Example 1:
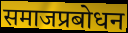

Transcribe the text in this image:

समाजप्रबोधन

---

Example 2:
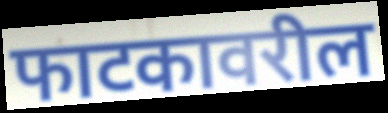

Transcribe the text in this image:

फाटकावरील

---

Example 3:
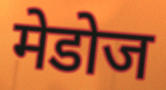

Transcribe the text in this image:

मेडोज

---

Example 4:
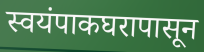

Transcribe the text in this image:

स्वयंपाकघरापासून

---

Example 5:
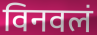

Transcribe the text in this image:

विनवलं